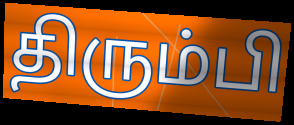
திரும்பி